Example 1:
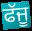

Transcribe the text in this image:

ਫੱਜੂ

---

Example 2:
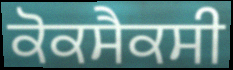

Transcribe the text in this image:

ਕੋਕਸੈਕਸੀ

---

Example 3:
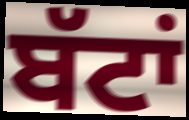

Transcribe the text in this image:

ਬੱਟਾਂ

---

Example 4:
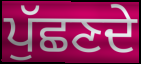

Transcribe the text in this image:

ਪੁੱਛਣਦੇ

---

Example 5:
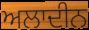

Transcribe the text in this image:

ਅਲਾਦੀਨ